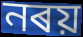
নৰয়